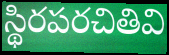
స్థిరపరచితివి